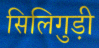
सिलिगुड़ी